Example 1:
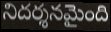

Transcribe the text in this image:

నిదర్శనమైంది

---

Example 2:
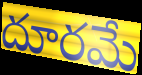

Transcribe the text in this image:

దూరమే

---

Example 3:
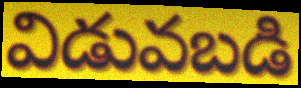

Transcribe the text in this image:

విడువబడి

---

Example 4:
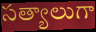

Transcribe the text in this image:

సత్యాలుగా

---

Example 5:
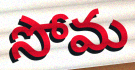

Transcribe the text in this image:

సోమ